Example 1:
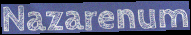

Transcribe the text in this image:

Nazarenum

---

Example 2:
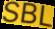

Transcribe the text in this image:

SBL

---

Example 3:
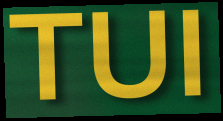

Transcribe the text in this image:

TUI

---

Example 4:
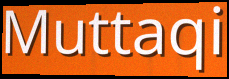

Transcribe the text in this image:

Muttaqi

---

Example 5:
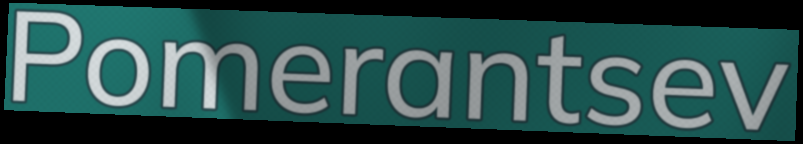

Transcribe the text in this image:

Pomerantsev